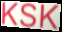
KSK